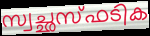
സ്വച്ഛസ്ഫടിക